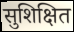
सुशिक्षित